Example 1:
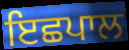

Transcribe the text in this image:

ਇਛਪਾਲ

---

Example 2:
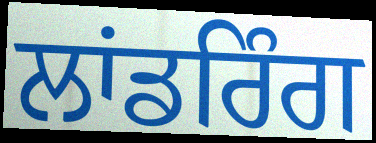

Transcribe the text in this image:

ਲਾਂਡਰਿੰਗ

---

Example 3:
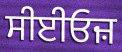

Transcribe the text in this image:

ਸੀਈਓਜ਼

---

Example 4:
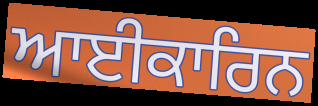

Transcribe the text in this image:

ਆਈਕਾਰਿਨ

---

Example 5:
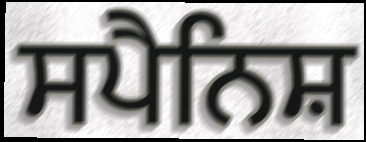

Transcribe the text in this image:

ਸਪੈਨਿਸ਼